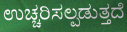
ಉಚ್ಚರಿಸಲ್ಪಡುತ್ತದೆ